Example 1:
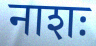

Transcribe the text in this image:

नाशः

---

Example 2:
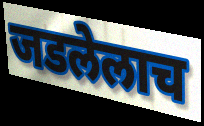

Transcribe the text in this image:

जडलेलाच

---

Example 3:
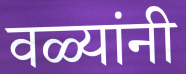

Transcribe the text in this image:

वळ्यांनी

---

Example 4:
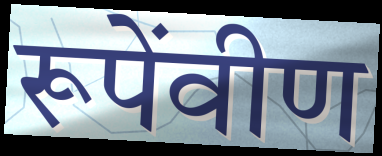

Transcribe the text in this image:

रूपेंवीण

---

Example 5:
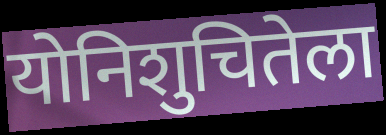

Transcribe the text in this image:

योनिशुचितेला